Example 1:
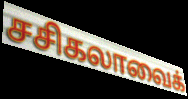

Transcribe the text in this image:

சசிகலாவைக்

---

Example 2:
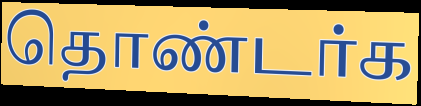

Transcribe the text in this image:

தொண்டர்க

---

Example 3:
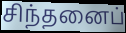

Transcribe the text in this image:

சிந்தனைப்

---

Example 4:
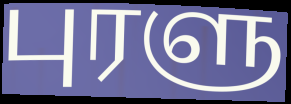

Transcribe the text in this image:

புரளு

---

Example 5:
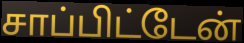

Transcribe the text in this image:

சாப்பிட்டேன்